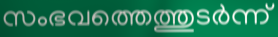
സംഭവത്തെത്തുടർന്ന്